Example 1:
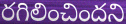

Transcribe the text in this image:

రగిలించిందని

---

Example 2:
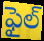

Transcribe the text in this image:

ఫైల్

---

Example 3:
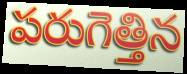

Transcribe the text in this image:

పరుగెత్తిన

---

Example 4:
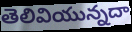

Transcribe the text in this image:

తెలివియున్నదా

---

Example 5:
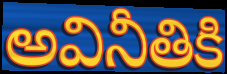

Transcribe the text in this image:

అవినీతికి